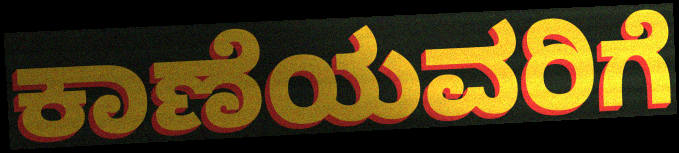
ಕಾಣೆಯವರಿಗೆ